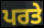
ਪਰਤੇ